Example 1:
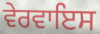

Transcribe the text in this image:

ਵੇਰਵਾਇਸ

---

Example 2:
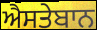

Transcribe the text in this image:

ਐਸਤੇਬਾਨ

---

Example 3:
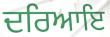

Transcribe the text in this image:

ਦਰਿਆਇ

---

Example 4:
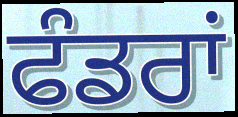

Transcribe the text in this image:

ਫੰਡਰਾਂ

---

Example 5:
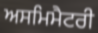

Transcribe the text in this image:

ਅਸਮਿਮੈਟਰੀ